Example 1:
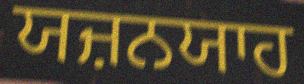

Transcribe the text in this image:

ਯਜ਼ਨਯਾਹ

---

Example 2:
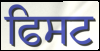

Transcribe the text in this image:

ਫਿਸਟ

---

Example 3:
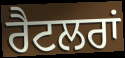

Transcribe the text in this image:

ਰੈਟਲਰਾਂ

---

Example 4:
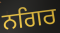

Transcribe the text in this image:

ਨਗਿਰ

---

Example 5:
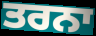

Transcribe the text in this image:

ਤਰਨਾ